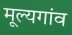
मूल्यगांव